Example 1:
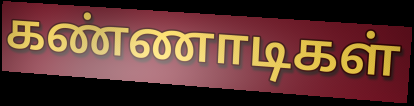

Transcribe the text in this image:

கண்ணாடிகள்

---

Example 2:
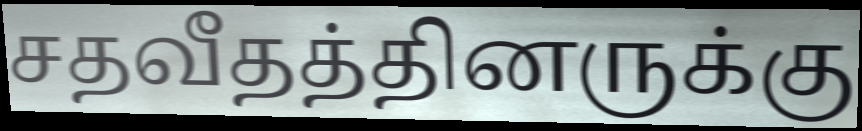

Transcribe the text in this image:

சதவீதத்தினருக்கு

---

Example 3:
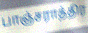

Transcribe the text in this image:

பாஞ்சராத்திர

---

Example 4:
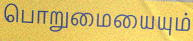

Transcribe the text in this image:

பொறுமையையும்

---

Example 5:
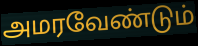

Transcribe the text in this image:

அமரவேண்டும்